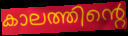
കാലത്തിന്റെ